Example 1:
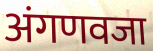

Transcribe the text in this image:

अंगणवजा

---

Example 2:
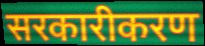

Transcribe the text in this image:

सरकारीकरण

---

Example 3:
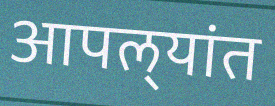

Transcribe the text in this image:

आपल्यांत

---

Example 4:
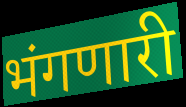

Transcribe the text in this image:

भंगणारी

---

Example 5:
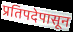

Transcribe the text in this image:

प्रतिपदेपासून